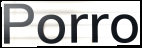
Porro